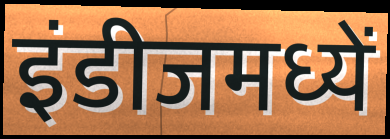
इंडीजमध्यें